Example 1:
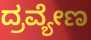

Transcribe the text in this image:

ದ್ರವ್ಯೇಣ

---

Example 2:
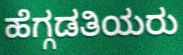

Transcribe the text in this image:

ಹೆಗ್ಗಡತಿಯರು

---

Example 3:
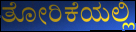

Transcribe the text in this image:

ತೋರಿಕೆಯಲ್ಲಿ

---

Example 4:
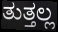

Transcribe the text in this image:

ತುತ್ತಲ್ಲ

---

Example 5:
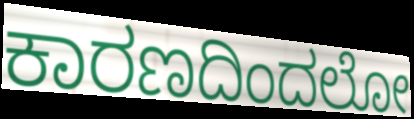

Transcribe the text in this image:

ಕಾರಣದಿಂದಲೋ